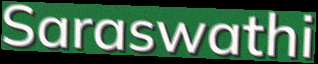
Saraswathi